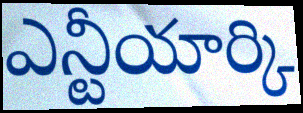
ఎన్టీయార్కి